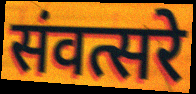
संवत्सरे